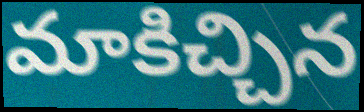
మాకిచ్చిన